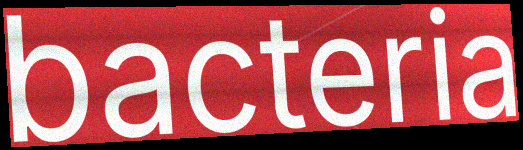
bacteria